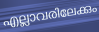
എല്ലാവരിലേക്കും